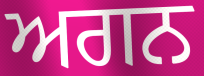
ਅਗਨ